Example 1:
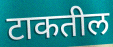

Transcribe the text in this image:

टाकतील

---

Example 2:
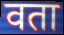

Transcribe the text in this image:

वता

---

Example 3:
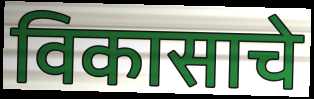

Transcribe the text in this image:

विकासाचे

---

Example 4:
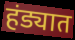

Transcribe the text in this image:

हंड्यात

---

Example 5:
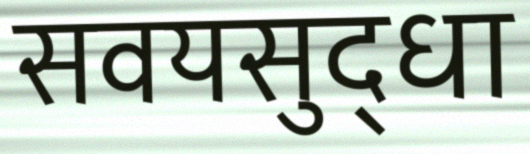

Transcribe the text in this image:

सवयसुद्धा